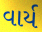
વાર્ય